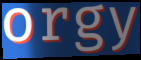
orgy